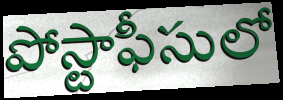
పోస్టాఫీసులో